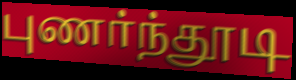
புணர்ந்தூடி